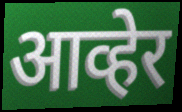
आव्हेर